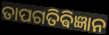
ତାପଗତିଵିଜ୍ଞାନ